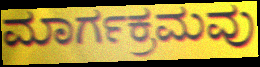
ಮಾರ್ಗಕ್ರಮವು